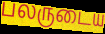
பலருடைய